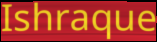
Ishraque